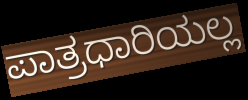
ಪಾತ್ರಧಾರಿಯಲ್ಲ